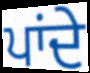
ਪਾਂਦੇ